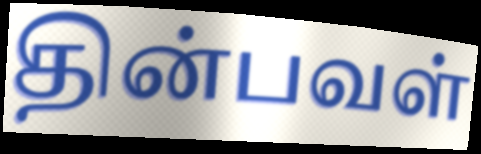
தின்பவள்